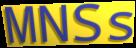
MNSs